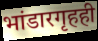
भांडारगृहही